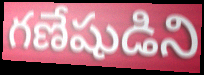
గణేషుడిని